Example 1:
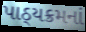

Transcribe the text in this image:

પાઠ્યક્રમનાં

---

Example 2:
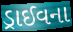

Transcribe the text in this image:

ડ્રાઈવના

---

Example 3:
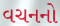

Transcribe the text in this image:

વચનનો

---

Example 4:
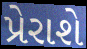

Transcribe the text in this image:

પ્રેરાશે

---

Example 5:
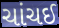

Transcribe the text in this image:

ચાંચઈ